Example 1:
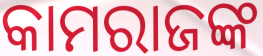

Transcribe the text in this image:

କାମରାଜଙ୍କ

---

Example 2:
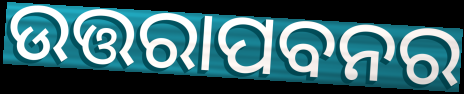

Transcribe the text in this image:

ଉତ୍ତରାପବନର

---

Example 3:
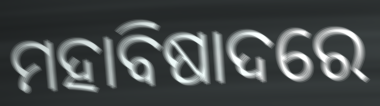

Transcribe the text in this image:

ମହାବିଷାଦରେ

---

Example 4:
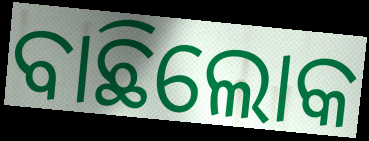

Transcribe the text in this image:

ବାଛିଲୋକ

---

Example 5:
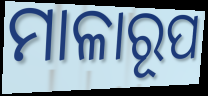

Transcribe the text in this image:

ମାଳାରୂପ